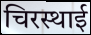
चिरस्थाई